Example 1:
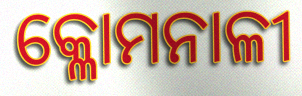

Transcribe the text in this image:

କ୍ଳୋମନାଳୀ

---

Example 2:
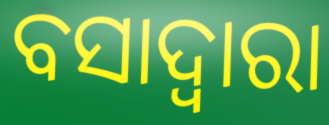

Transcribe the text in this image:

ବସାଦ୍ୱାରା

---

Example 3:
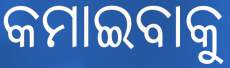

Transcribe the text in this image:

କମାଇବାକୁ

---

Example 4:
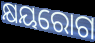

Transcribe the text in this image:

କ୍ଷୟରୋଗ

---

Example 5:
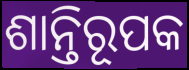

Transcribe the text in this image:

ଶାନ୍ତିରୂପକ